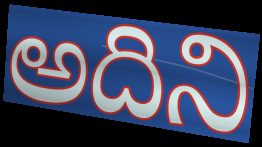
అదిని